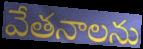
వేతనాలను